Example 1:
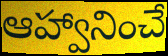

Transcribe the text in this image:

ఆహ్వానించే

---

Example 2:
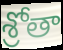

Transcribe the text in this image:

శ్రోతా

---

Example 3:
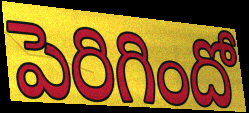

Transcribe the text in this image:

పెరిగిందో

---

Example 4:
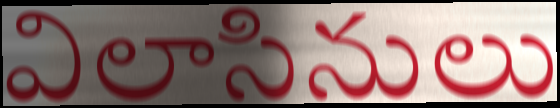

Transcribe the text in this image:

విలాసినులు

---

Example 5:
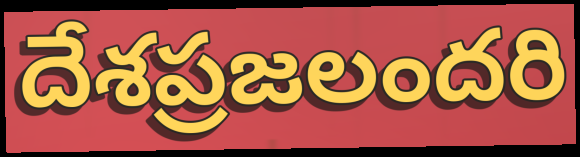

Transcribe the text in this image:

దేశప్రజలందరి